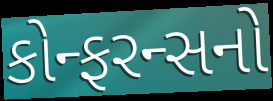
કોન્ફરન્સનો